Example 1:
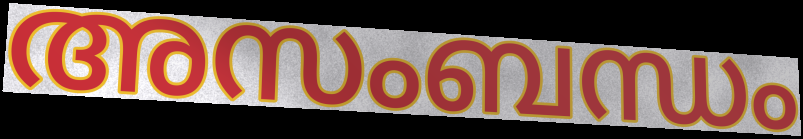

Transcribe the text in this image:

അസംബന്ധം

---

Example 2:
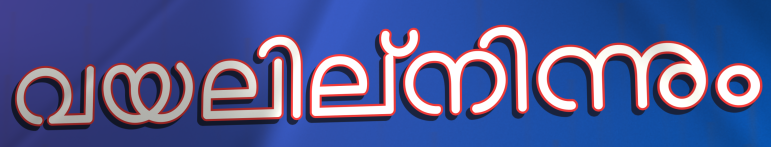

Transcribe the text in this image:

വയലില്നിന്നും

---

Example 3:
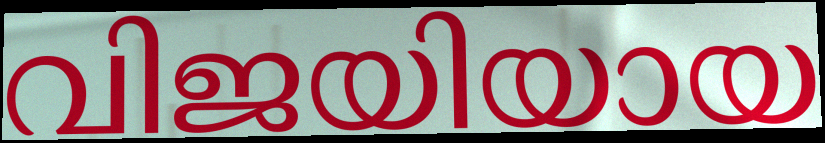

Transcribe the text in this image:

വിജയിയായ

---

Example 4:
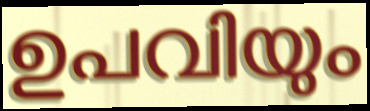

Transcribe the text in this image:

ഉപവിയും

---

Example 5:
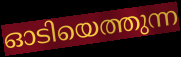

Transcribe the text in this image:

ഓടിയെത്തുന്ന